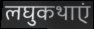
लघुकथाएं